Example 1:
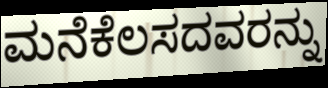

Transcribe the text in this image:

ಮನೆಕೆಲಸದವರನ್ನು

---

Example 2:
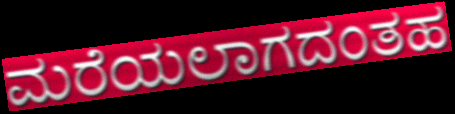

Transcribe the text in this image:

ಮರೆಯಲಾಗದಂತಹ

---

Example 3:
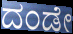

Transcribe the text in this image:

ದಂಡೇ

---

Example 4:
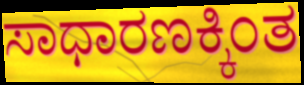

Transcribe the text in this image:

ಸಾಧಾರಣಕ್ಕಿಂತ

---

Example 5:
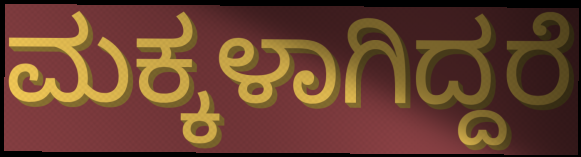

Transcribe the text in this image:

ಮಕ್ಕಳಾಗಿದ್ದರೆ